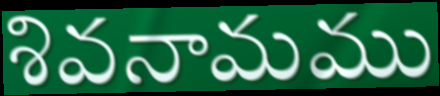
శివనామము